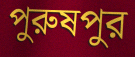
পুরুষপুর